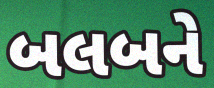
બલબને